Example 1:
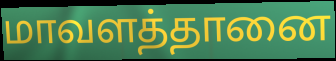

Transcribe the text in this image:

மாவளத்தானை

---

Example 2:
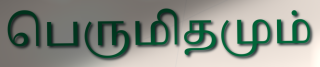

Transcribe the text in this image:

பெருமிதமும்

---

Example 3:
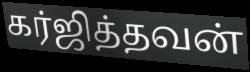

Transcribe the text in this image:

கர்ஜித்தவன்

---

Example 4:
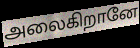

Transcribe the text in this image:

அலைகிறானே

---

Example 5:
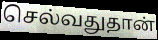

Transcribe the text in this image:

செல்வதுதான்